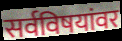
सर्वविषयांवर